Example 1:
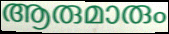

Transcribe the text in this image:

ആരുമാരും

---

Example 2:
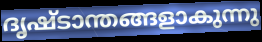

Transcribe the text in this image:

ദൃഷ്ടാന്തങ്ങളാകുന്നു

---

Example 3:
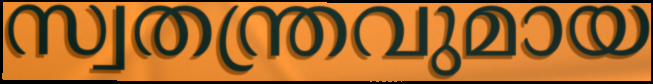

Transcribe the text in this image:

സ്വതന്ത്രവുമായ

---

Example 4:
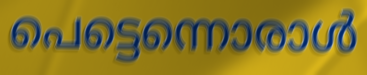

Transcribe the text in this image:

പെട്ടെന്നൊരാൾ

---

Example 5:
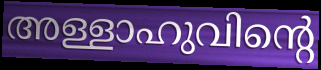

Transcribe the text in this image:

അള്ളാഹുവിന്റെ